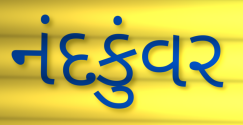
નંદકુંવર